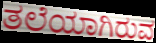
ತಲೆಯಾಗಿರುವ